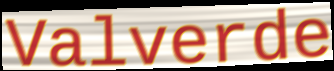
Valverde